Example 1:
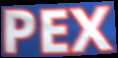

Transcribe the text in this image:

PEX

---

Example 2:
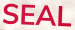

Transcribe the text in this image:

SEAL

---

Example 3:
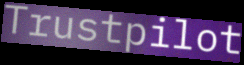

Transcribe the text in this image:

Trustpilot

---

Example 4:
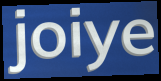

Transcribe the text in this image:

joiye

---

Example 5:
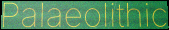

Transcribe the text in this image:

Palaeolithic